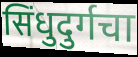
सिंधुदुर्गचा